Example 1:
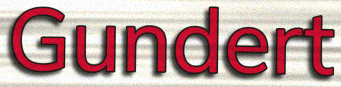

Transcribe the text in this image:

Gundert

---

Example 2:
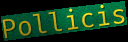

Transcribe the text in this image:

Pollicis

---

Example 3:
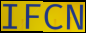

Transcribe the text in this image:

IFCN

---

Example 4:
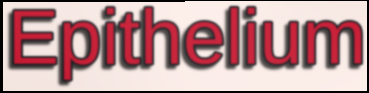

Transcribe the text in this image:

Epithelium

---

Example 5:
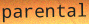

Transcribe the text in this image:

parental